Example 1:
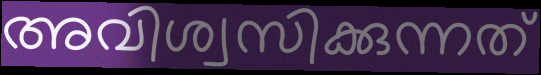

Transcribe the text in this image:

അവിശ്വസിക്കുന്നത്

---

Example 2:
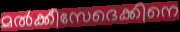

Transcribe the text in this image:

മൽക്കീസേദെക്കിനെ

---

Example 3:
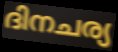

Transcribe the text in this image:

ദിനചര്യ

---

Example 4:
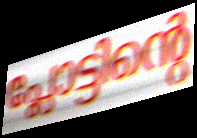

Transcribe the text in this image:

പ്ലോട്ടിന്റെ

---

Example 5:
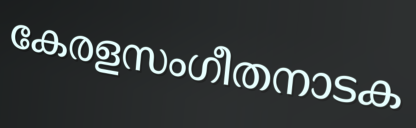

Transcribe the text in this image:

കേരളസംഗീതനാടക